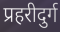
प्रहरीदुर्ग